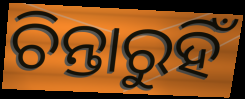
ଚିନ୍ତାରୁହିଁ